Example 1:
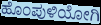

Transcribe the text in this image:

ಹೊಂಪುಳಿಯೋಗಿ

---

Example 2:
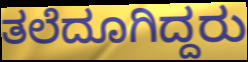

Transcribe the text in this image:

ತಲೆದೂಗಿದ್ದರು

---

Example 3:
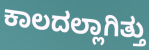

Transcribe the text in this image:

ಕಾಲದಲ್ಲಾಗಿತ್ತು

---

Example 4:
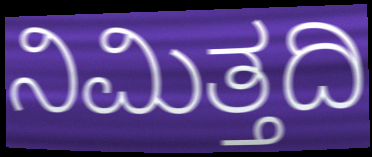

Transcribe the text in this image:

ನಿಮಿತ್ತದಿ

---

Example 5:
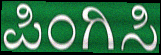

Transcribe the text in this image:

ಪಿಂಗಿಸಿ